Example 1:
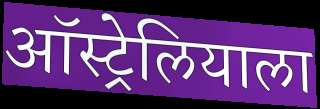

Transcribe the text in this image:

ऑस्ट्रेलियाला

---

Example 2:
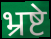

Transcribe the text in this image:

भ्रष्टे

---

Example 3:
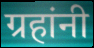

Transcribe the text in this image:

ग्रहांनी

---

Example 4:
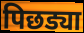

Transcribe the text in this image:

पिछड्या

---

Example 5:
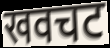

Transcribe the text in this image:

खवचट